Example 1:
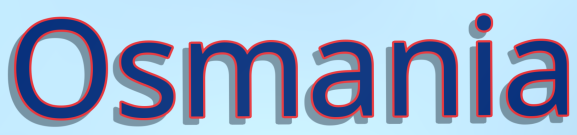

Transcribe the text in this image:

Osmania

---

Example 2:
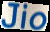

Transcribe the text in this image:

Jio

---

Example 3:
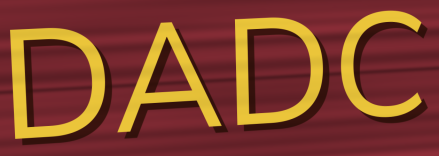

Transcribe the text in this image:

DADC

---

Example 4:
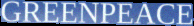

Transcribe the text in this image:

GREENPEACE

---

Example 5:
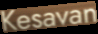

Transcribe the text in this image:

Kesavan